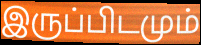
இருப்பிடமும்